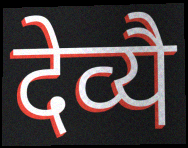
देव्यै